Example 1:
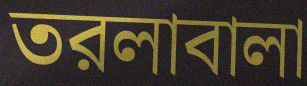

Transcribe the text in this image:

তরলাবালা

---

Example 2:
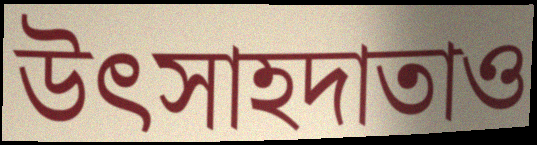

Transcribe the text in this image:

উৎসাহদাতাও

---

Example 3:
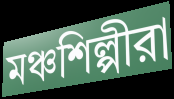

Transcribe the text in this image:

মঞ্চশিল্পীরা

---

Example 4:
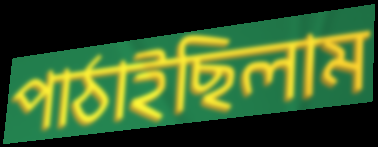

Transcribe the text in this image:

পাঠাইছিলাম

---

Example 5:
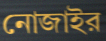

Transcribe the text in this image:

নোজাইর